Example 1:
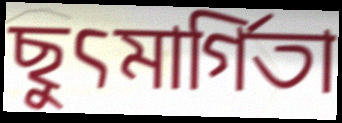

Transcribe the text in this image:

ছুৎমার্গিতা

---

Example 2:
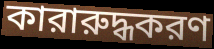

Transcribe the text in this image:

কারারুদ্ধকরণ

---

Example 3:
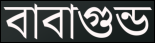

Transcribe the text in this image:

বাবাগুন্ড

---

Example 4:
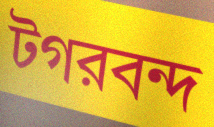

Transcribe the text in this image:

টগরবন্দ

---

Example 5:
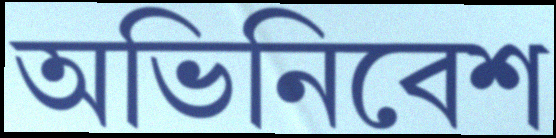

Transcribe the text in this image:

অভিনিবেশ